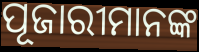
ପୂଜାରୀମାନଙ୍କ